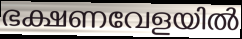
ഭക്ഷണവേളയിൽ